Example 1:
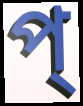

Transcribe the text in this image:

প্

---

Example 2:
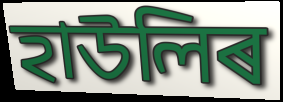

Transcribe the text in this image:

হাউলিৰ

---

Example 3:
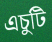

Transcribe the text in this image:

এচুটি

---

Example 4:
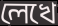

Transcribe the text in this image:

লেখে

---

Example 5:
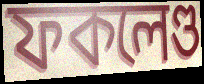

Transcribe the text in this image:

ফকলেণ্ড